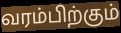
வரம்பிற்கும்